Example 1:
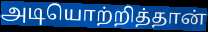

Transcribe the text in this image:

அடியொற்றித்தான்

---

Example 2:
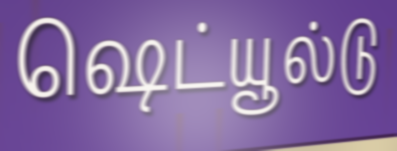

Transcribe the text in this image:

ஷெட்யூல்டு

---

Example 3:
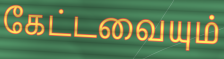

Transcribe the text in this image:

கேட்டவையும்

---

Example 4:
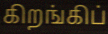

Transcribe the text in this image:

கிறங்கிப்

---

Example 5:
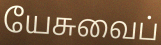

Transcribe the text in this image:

யேசுவைப்